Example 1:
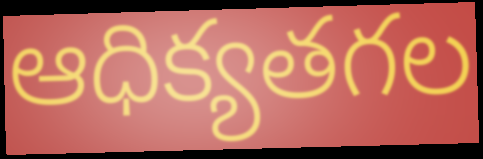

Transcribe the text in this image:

ఆధిక్యతగల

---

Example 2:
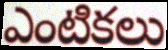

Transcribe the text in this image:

ఎంటికలు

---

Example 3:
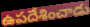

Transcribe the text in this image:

ఉపదేశించాడు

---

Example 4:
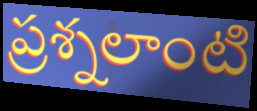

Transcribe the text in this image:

ప్రశ్నలాంటి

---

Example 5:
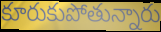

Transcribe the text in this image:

కూరుకుపోతున్నారు